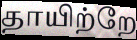
தாயிற்றே